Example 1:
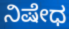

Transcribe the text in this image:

ನಿಷೇಧ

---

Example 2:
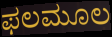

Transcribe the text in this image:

ಫಲಮೂಲ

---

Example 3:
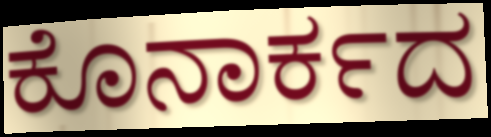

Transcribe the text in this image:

ಕೊನಾರ್ಕದ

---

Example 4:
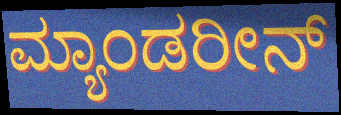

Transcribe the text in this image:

ಮ್ಯಾಂಡರೀನ್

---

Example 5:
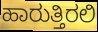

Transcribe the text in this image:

ಹಾರುತ್ತಿರಲಿ